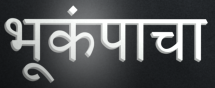
भूकंपाचा